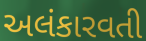
અલંકારવતી